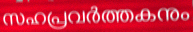
സഹപ്രവർത്തകനും